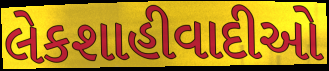
લેકશાહીવાદીઓ